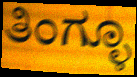
ತಿಂಗ್ಳೂ